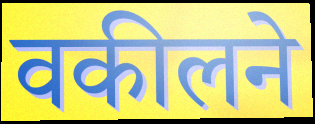
वकीलने